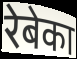
रेबेका